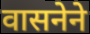
वासनेने